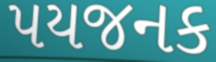
પયજનક